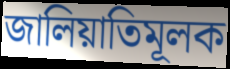
জালিয়াতিমূলক